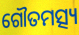
ଗୌତମତ୍ସ୍ୟ